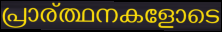
പ്രാര്ത്ഥനകളോടെ